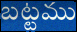
బట్టము